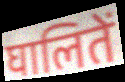
घालितें